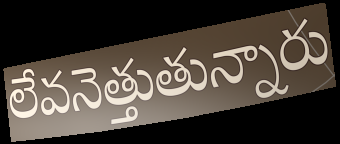
లేవనెత్తుతున్నారు